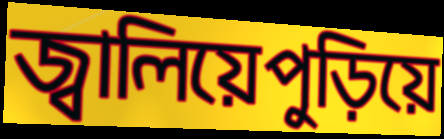
জ্বালিয়েপুড়িয়ে